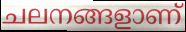
ചലനങ്ങളാണ്